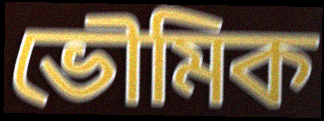
ভৌমিক